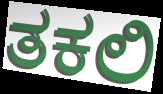
ತಕಲಿ